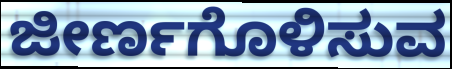
ಜೀರ್ಣಗೊಳಿಸುವ